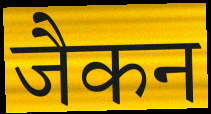
जैकन